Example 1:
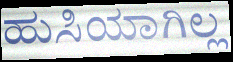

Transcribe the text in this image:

ಹುಸಿಯಾಗಿಲ್ಲ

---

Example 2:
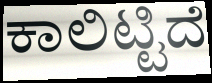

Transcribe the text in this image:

ಕಾಲಿಟ್ಟಿದೆ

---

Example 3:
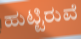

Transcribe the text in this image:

ಹುಟ್ಟಿರುವೆ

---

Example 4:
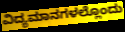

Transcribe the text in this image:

ವಿದ್ಯಮಾನಗಳಲ್ಲೊಂದು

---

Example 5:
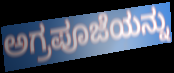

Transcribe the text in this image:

ಅಗ್ರಪೂಜೆಯನ್ನು